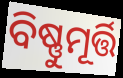
ବିଷ୍ଣୁମୂର୍ତ୍ତି